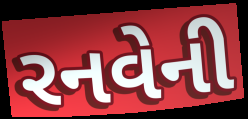
રનવેની